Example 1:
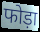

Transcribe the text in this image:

फोड़ा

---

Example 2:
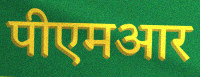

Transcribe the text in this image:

पीएमआर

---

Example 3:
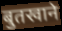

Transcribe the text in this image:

बुतखाने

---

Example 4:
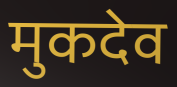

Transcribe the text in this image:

मुकदेव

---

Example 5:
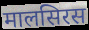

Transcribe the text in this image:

मालसिरस